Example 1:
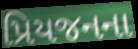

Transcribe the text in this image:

પ્રિયજનના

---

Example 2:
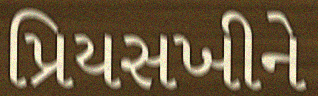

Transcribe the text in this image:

પ્રિયસખીને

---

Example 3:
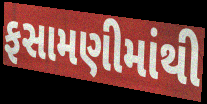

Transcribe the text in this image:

ફસામણીમાંથી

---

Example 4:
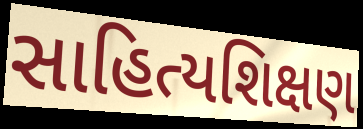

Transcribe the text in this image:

સાહિત્યશિક્ષણ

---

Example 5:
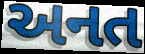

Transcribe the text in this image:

અનત